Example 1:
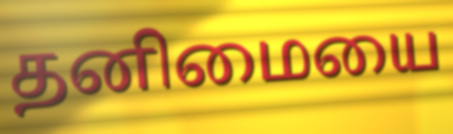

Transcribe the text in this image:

தனிமையை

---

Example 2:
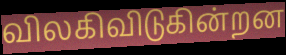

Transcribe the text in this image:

விலகிவிடுகின்றன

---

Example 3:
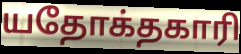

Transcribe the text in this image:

யதோக்தகாரி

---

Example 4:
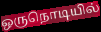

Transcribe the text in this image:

ஒருநொடியில்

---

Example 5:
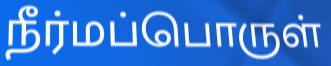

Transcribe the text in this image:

நீர்மப்பொருள்